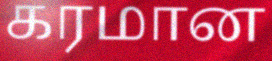
கரமான